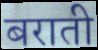
बराती